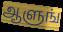
ஆளுங்